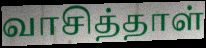
வாசித்தாள்